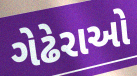
ગેઢેરાઓ